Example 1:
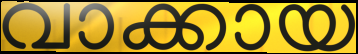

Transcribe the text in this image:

വാക്കായ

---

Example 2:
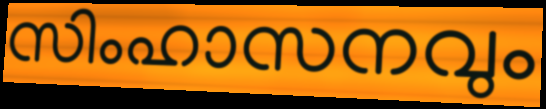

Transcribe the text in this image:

സിംഹാസനവും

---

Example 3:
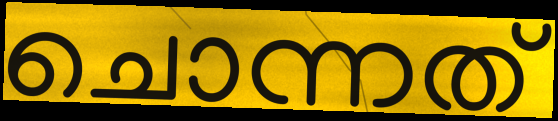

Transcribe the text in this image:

ചൊന്നത്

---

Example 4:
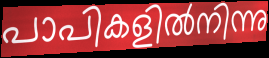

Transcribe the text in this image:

പാപികളിൽനിന്നു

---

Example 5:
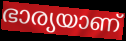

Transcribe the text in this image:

ഭാര്യയാണ്